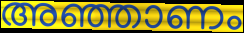
അഞ്ഞാണം